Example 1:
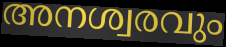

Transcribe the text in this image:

അനശ്വരവും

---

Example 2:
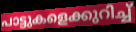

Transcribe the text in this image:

പാട്ടുകളെക്കുറിച്ച്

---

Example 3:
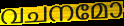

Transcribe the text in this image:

വചനമോ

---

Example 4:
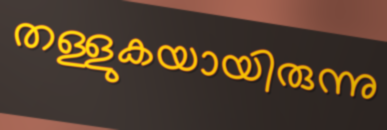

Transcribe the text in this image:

തള്ളുകയായിരുന്നു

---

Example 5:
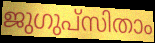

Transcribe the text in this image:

ജുഗുപ്സിതാം